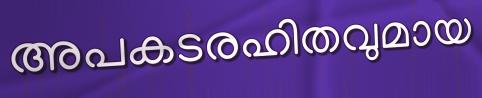
അപകടരഹിതവുമായ